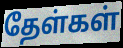
தேள்கள்